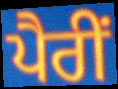
ਪੈਰੀਂ